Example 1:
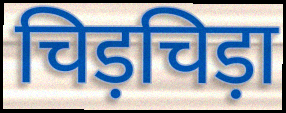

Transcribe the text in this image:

चिड़चिड़ा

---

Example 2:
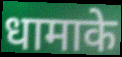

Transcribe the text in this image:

धामाके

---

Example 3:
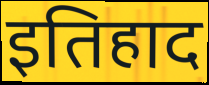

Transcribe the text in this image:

इतिहाद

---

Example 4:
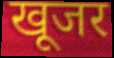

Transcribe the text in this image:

खूजर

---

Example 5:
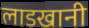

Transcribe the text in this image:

लाडखानी